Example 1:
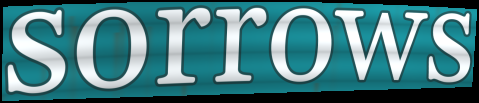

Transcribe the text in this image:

sorrows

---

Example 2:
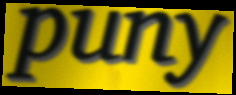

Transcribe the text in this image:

puny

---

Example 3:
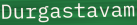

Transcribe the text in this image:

Durgastavam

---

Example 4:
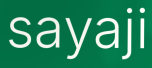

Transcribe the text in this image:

sayaji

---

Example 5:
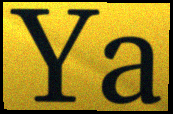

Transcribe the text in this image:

Ya